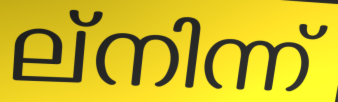
ല്നിന്ന്